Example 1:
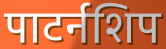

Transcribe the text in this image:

पाटर्नशिप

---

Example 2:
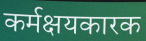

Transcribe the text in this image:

कर्मक्षयकारक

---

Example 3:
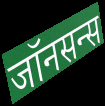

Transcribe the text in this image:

जॉनसन्स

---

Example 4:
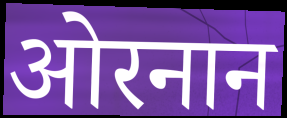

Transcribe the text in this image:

ओरनान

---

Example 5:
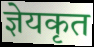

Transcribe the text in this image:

ज्ञेयकृत